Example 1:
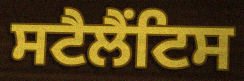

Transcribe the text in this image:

ਸਟੈਲੈਂਟਿਸ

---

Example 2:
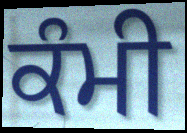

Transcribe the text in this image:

ਕੰਮੀ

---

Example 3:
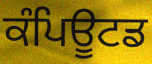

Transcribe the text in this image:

ਕੰਪਿਊਟਡ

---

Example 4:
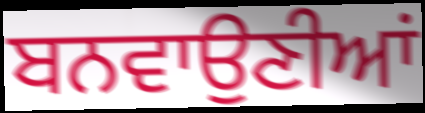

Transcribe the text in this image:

ਬਨਵਾਉਣੀਆਂ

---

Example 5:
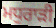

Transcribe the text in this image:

ਮਧੁਰਾੜੀ